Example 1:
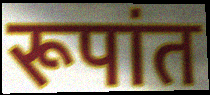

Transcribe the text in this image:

रूपांत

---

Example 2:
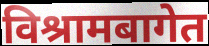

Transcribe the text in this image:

विश्रामबागेत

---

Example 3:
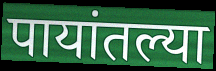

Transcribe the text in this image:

पायांतल्या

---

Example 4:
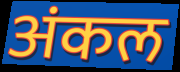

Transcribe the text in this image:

अंकल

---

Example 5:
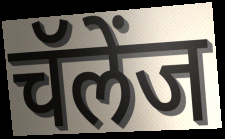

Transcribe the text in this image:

चॅलेंज